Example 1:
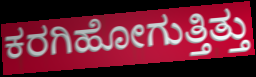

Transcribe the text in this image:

ಕರಗಿಹೋಗುತ್ತಿತ್ತು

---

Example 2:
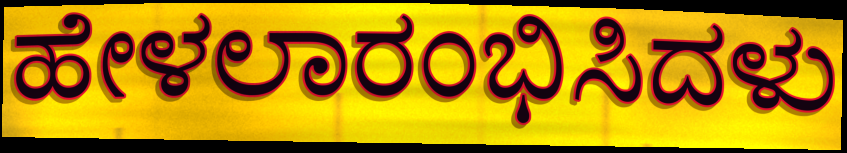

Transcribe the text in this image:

ಹೇಳಲಾರಂಭಿಸಿದಳು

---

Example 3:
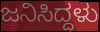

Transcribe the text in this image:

ಜನಿಸಿದ್ದಳು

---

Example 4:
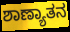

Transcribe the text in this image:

ಶಾಣ್ಯಾತನ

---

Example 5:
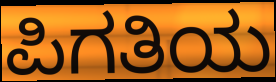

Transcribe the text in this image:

ಪಿಗತಿಯ